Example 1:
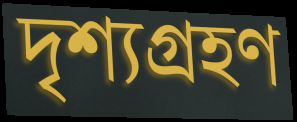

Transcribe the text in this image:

দৃশ্যগ্ৰহণ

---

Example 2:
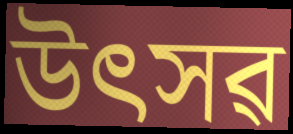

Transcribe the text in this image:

উৎসৱ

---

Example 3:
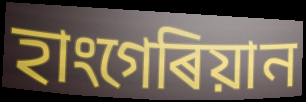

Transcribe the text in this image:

হাংগেৰিয়ান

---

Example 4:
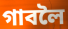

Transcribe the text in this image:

গাবলৈ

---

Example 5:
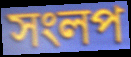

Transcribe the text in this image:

সংলপ